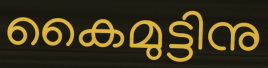
കൈമുട്ടിനു